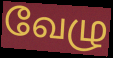
வேழு